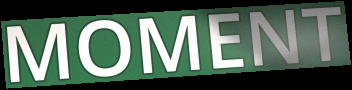
MOMENT